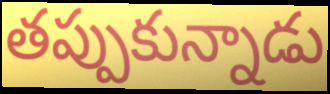
తప్పుకున్నాడు